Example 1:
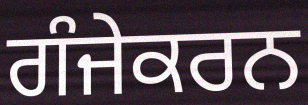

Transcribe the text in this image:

ਗੰਜੇਕਰਨ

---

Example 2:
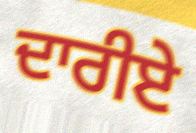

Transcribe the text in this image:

ਦਾਰੀਏ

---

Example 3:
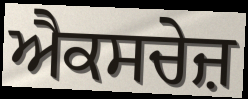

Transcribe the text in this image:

ਐਕਸਚੇਜ਼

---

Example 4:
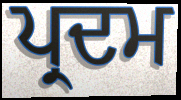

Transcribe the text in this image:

ਪ੍ਰਦਮ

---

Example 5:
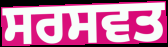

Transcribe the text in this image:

ਸਰਸਵਤ